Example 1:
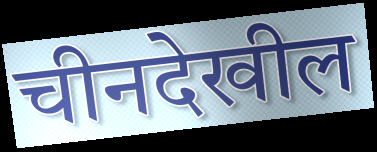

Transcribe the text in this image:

चीनदेखील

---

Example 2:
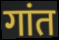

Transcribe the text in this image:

गांत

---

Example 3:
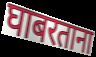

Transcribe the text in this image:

घाबरताना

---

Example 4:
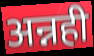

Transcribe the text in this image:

अन्नही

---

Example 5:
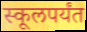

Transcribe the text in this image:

स्कूलपर्यंत